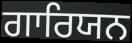
ਗਾਰਿਯਨ